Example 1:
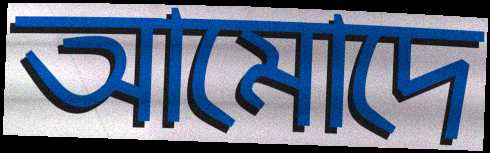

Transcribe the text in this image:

আমোদে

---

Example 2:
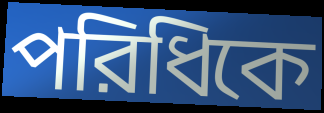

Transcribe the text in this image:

পরিধিকে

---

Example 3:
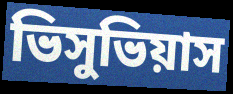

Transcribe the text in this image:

ভিসুভিয়াস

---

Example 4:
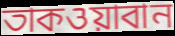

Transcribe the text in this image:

তাকওয়াবান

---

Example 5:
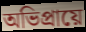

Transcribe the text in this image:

অভিপ্রায়ে